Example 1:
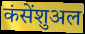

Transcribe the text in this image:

कंसेंशुअल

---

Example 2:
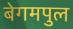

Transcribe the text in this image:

बेगमपुल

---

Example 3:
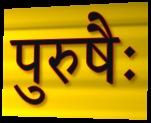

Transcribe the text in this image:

पुरुषैः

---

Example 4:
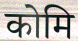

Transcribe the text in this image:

कोमि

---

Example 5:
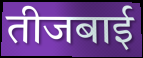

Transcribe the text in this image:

तीजबाई